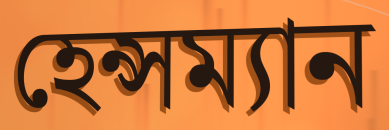
হেন্সম্যান